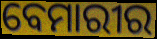
ବେମାରୀର